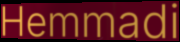
Hemmadi